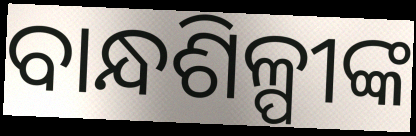
ବାନ୍ଧଶିଳ୍ପୀଙ୍କ